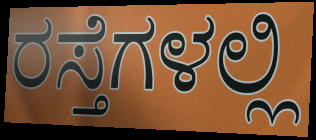
ರಸ್ತೆಗಳಲ್ಲಿ